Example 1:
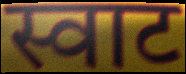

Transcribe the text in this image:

स्वाट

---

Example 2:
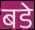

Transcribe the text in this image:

बडे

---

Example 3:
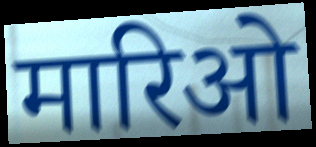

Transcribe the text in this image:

मारिओ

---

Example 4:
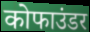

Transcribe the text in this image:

कोफाउंडर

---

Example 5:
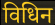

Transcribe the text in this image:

विधिन